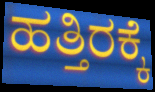
ಹತ್ತಿರಕ್ಕೆ